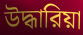
উদ্ধারিয়া